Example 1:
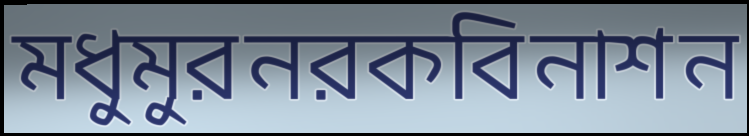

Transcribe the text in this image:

মধুমুরনরকবিনাশন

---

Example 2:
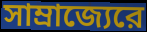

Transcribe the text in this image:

সাম্রাজ্যেরে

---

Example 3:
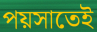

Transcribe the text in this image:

পয়সাতেই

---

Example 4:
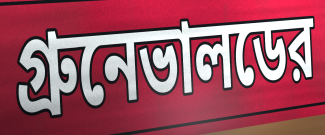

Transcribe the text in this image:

গ্রুনেভালডের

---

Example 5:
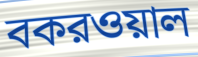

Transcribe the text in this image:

বকরওয়াল